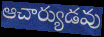
ఆచార్యుడవు